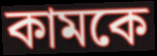
কামকে